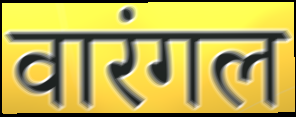
वारंगल